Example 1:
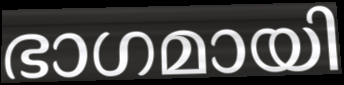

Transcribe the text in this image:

ഭാഗമായി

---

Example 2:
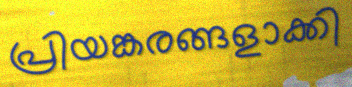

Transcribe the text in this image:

പ്രിയങ്കരങ്ങളാക്കി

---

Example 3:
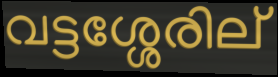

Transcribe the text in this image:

വട്ടശ്ശേരില്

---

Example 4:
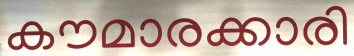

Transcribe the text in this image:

കൗമാരക്കാരി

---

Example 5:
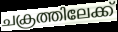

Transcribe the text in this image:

ചക്രത്തിലേക്ക്